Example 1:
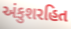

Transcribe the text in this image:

અંકુશરહિત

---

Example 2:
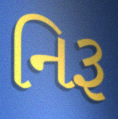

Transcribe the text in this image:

નિરૂ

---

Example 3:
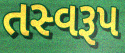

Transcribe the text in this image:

તસ્વરૂપ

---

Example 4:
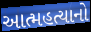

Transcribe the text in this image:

આત્મહત્યાનો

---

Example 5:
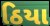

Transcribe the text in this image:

ઠિયા